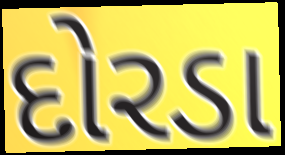
દોરડા